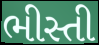
ભીસ્તી